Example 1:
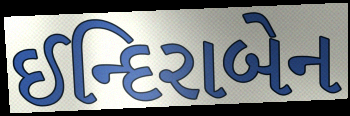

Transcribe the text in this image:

ઈન્દિરાબેન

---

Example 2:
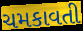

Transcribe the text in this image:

ચમકાવતી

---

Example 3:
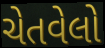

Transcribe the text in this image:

ચેતવેલો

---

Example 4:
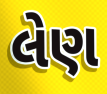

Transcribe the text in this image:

લેણ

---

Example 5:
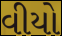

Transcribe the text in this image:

વીયો